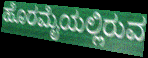
ಹೊರಮೈಯಲ್ಲಿರುವ